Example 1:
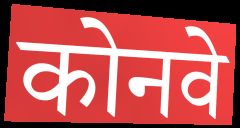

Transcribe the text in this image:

कोनवे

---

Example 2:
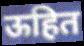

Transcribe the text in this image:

ऊहित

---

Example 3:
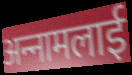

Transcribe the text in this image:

अन्‍नामलाई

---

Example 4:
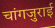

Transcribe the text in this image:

चांगजुराई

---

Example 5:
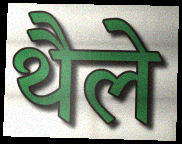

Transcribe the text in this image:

थैले